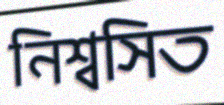
নিশ্বসিত